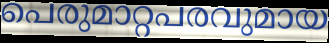
പെരുമാറ്റപരവുമായ